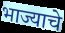
भाज्याचे